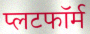
प्लटफॉर्म